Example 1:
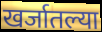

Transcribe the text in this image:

खर्जातल्या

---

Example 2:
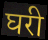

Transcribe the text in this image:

घरी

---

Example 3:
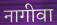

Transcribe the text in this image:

नागीवा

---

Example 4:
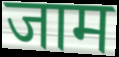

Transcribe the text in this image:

जाम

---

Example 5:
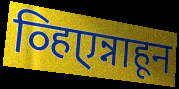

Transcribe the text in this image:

व्हिएन्नाहून